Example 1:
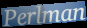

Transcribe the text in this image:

Perlman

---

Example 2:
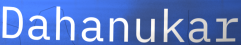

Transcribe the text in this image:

Dahanukar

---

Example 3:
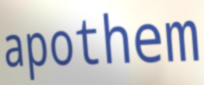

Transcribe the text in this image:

apothem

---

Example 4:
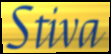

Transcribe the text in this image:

Stiva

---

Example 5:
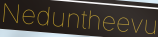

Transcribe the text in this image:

Neduntheevu